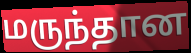
மருந்தான